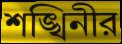
শঙ্খিনীর